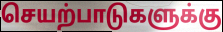
செயற்பாடுகளுக்கு